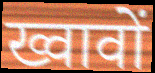
ख्वावों